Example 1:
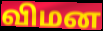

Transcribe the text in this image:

விமன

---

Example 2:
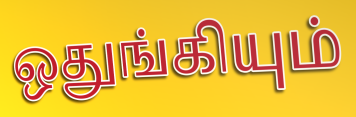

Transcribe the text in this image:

ஒதுங்கியும்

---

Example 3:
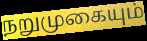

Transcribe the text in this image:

நறுமுகையும்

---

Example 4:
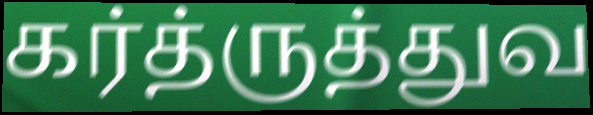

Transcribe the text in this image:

கர்த்ருத்துவ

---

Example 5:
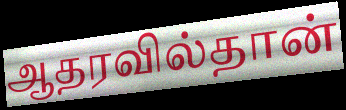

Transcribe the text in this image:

ஆதரவில்தான்